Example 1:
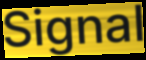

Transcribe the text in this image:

Signal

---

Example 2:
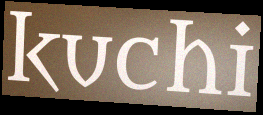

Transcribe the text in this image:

kuchi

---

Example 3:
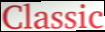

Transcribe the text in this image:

Classic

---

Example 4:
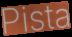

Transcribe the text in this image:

Pista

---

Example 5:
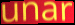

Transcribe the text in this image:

unar